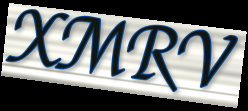
XMRV